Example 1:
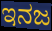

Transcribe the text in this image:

ಇನಜ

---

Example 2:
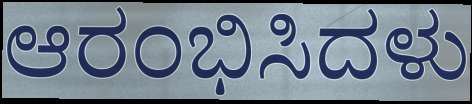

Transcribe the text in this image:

ಆರಂಭಿಸಿದಳು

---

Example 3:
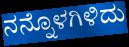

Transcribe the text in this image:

ನನ್ನೊಳಗಿಳಿದು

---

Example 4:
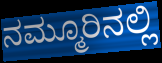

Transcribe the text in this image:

ನಮ್ಮೂರಿನಲ್ಲಿ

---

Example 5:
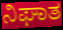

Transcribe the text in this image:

ನಿಘಾತ